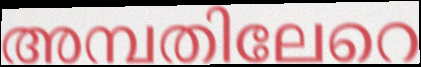
അമ്പതിലേറെ